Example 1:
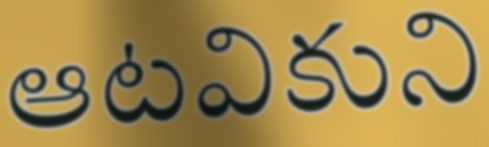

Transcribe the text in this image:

ఆటవికుని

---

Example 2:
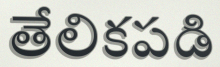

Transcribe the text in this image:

తేలికపడి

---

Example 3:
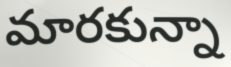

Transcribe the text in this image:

మారకున్నా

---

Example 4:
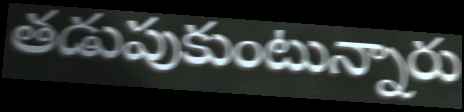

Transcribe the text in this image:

తడుపుకుంటున్నారు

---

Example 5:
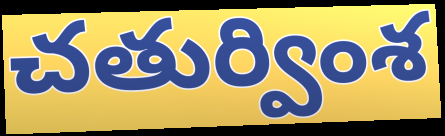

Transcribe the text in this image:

చతుర్వింశ